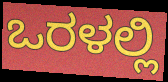
ಒರಳಲ್ಲಿ